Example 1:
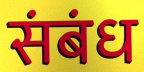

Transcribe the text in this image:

संबंध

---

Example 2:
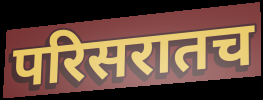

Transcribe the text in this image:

परिसरातच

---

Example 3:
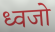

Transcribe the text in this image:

ध्वजो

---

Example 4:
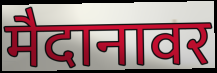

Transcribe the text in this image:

मैदानावर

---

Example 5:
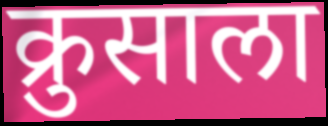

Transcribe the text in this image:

क्रुसाला